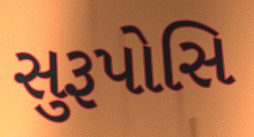
સુરૂપોસિ